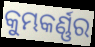
କୁମ୍ଭକର୍ଣ୍ଣର